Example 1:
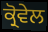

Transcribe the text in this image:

ਕ੍ਰੋਵੇਲ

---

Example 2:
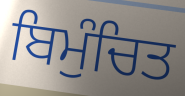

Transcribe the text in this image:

ਬਿਮੁੰਚਿਤ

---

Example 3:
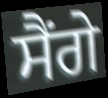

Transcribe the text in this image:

ਸੈਂਗੇ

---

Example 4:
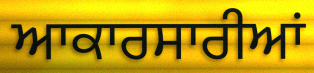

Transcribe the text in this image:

ਆਕਾਰਸਾਰੀਆਂ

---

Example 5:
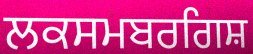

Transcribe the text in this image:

ਲਕਸਮਬਰਗਿਸ਼